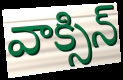
వాక్సిన్